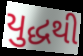
યુદ્ધથી